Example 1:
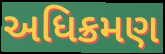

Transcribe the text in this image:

અધિક્રમણ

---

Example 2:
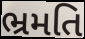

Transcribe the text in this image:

ભ્રમતિ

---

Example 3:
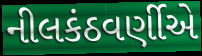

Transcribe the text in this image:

નીલકંઠવર્ણીએ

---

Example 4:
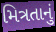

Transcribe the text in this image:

મિત્રતાનું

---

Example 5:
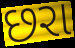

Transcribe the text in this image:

છરા